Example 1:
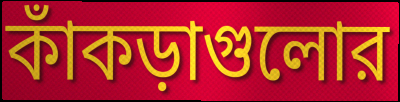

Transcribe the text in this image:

কাঁকড়াগুলোর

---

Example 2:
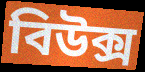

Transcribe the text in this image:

বিউক্স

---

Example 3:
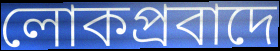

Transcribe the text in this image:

লোকপ্রবাদে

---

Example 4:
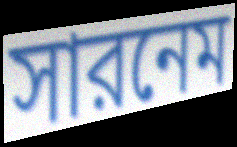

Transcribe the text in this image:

সারনেম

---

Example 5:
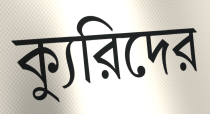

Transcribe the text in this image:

ক্যুরিদের